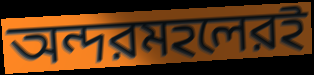
অন্দরমহলেরই